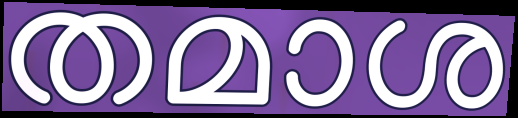
തമാശ